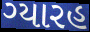
ગ્યારહ